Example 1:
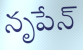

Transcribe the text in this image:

నృపేన్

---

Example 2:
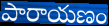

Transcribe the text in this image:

పారాయణం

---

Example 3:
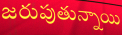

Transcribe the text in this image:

జరుపుతున్నాయి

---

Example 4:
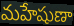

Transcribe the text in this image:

మహేషుణా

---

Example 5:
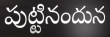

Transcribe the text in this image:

పుట్టినందున